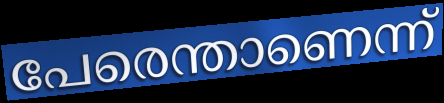
പേരെന്താണെന്ന്